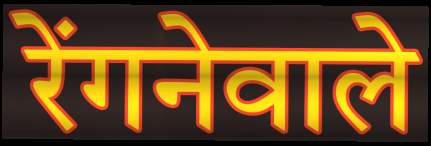
रेंगनेवाले